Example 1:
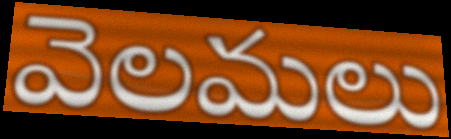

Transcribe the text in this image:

వెలమలు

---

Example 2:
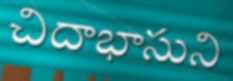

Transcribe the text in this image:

చిదాభాసుని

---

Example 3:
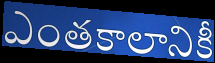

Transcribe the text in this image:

ఎంతకాలానికీ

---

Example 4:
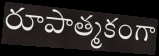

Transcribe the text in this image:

రూపాత్మకంగా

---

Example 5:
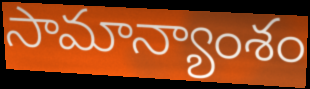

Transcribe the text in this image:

సామాన్యాంశం